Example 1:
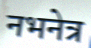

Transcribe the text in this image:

नभनेत्र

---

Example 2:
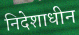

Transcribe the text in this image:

निदेशाधीन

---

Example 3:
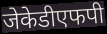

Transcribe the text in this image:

जेकेडीएफपी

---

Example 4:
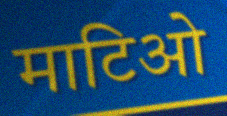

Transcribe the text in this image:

माटिओ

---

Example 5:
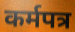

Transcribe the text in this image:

कर्मपत्र